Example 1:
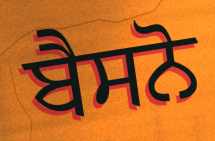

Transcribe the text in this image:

ਬੈਸਨੋ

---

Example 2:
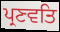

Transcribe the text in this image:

ਪ੍ਰਣਵਤਿ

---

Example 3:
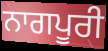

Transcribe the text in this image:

ਨਾਗਪੂਰੀ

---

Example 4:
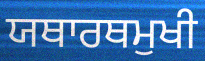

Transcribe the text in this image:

ਯਥਾਰਥਮੁਖੀ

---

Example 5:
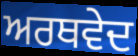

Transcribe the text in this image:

ਅਰਥਵੇਦ